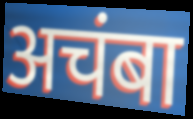
अचंबा